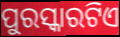
ପୁରସ୍କାରଟିଏ